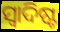
ସ୍ବାଦିଷ୍ଟ